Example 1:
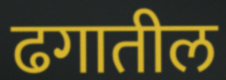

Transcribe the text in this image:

ढगातील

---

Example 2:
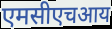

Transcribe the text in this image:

एमसीएचआय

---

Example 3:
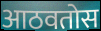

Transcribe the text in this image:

आठवतोस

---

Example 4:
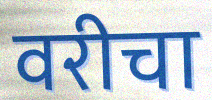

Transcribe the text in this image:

वरीचा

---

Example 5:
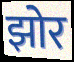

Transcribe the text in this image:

झोर